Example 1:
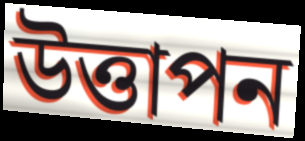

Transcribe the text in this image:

উত্তাপন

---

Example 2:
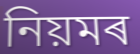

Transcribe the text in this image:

নিয়মৰ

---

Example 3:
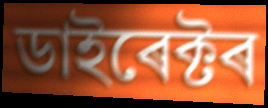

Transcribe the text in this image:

ডাইৰেক্টৰ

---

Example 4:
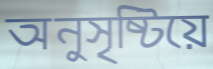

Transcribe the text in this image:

অনুসৃষ্টিয়ে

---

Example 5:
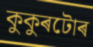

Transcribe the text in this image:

কুকুৰটোৰ